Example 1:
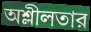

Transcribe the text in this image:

অশ্লীলতার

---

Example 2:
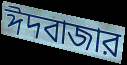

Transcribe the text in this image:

ঈদবাজার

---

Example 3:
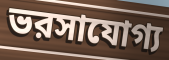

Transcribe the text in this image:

ভরসাযোগ্য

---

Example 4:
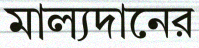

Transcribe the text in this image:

মাল্যদানের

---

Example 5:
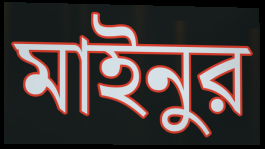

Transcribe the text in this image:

মাইনুর